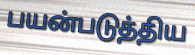
பயன்படுத்திய